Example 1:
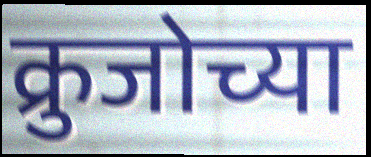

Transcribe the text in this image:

क्रुजोच्या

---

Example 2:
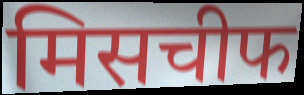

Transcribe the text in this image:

मिसचीफ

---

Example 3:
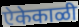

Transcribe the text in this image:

ऐकेकाळी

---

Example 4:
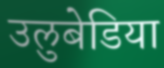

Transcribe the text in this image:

उलुबेडिया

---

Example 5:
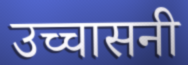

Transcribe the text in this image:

उच्चासनी